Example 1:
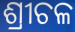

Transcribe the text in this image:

ଶ୍ରୀଚଳ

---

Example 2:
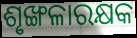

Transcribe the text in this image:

ଶୃଙ୍ଖଳାରକ୍ଷକ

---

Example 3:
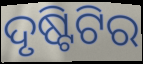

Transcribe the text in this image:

ଦୃଷ୍ଟିଟିର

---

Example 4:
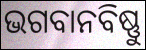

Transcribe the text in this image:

ଭଗବାନବିଷ୍ଣୁ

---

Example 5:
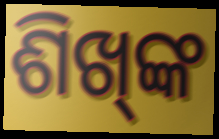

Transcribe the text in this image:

ଶିଖ୍‍ଙ୍କ